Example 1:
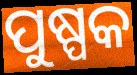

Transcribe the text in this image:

ପୁଷ୍ପକ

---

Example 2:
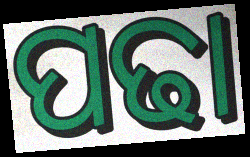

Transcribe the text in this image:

ପଢା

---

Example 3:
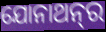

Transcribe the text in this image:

ଯୋନାଥନ୍‍ର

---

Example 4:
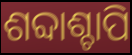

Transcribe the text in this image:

ଶବ୍ଦାଶ୍ଚାପି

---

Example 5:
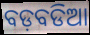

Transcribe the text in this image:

ବଡ଼ବଡିଆ